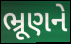
ભ્રૂણને